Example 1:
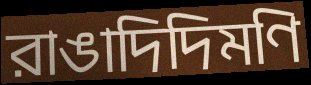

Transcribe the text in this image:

রাঙাদিদিমণি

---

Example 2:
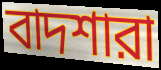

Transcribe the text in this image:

বাদশারা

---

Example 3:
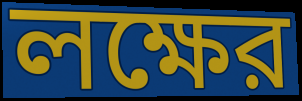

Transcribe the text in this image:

লক্ষের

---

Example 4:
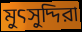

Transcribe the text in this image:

মুৎসুদ্দিরা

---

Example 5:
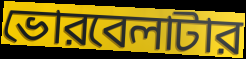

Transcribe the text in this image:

ভোরবেলাটার